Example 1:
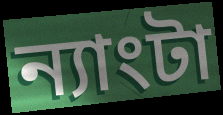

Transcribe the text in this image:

ন্যাংটা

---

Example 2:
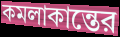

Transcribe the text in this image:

কমলাকান্তের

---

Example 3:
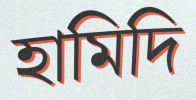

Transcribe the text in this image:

হামিদি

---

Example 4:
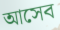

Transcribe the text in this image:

আসেব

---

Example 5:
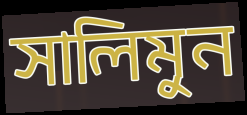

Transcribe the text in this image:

সালিমুন